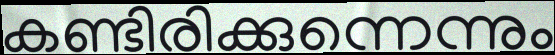
കണ്ടിരിക്കുന്നെന്നും